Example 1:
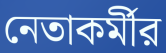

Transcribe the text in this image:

নেতাকর্মীর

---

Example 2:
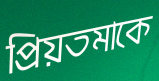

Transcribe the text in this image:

প্রিয়তমাকে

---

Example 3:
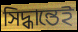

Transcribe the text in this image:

সিদ্ধান্তেই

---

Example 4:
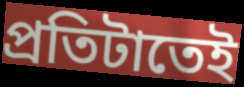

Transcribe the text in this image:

প্রতিটাতেই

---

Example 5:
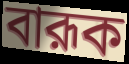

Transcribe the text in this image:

বারূক